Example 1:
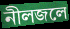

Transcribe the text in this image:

নীলজলে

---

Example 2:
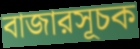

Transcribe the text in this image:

বাজারসূচক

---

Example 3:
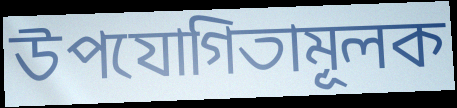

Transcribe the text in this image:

উপযোগিতামূলক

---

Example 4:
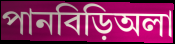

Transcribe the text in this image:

পানবিড়িঅলা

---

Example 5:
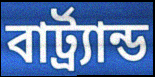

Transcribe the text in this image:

বার্ট্র্যান্ড